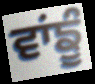
ਵਾਂਙੂੰ